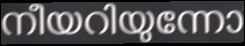
നീയറിയുന്നോ